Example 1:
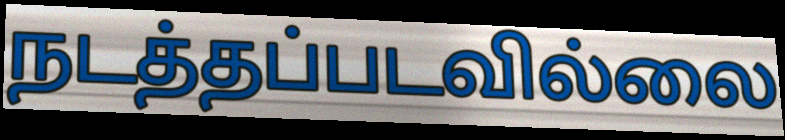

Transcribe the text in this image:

நடத்தப்படவில்லை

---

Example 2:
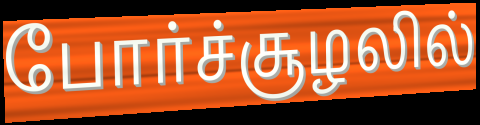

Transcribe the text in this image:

போர்ச்சூழலில்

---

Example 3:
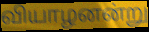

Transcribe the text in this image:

வியாழனன்று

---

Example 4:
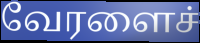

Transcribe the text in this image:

வேரளைச்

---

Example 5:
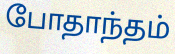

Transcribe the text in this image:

போதாந்தம்